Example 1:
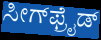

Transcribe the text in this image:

ಸೀಗ್‌ಫ್ರೈಡ್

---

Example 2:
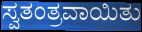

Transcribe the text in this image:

ಸ್ವತಂತ್ರವಾಯಿತು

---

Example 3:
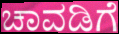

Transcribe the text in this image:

ಚಾವಡಿಗೆ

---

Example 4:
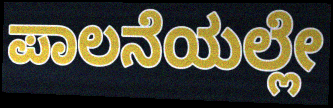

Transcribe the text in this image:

ಪಾಲನೆಯಲ್ಲೇ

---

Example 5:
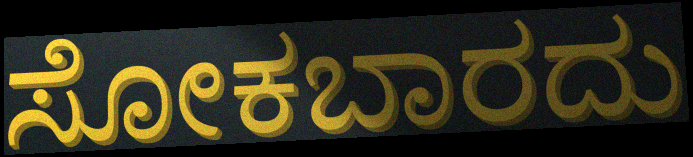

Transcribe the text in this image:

ಸೋಕಬಾರದು